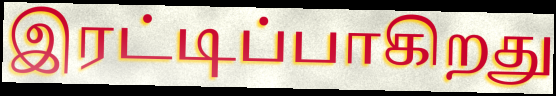
இரட்டிப்பாகிறது